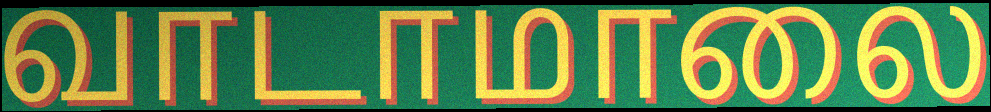
வாடாமாலை